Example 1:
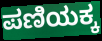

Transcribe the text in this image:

ಪಣಿಯಕ್ಕ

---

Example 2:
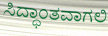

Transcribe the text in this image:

ಸಿದ್ಧಾಂತವಾಗಲಿ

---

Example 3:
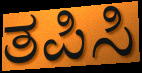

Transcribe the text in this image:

ತಪಿಸಿ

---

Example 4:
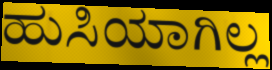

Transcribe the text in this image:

ಹುಸಿಯಾಗಿಲ್ಲ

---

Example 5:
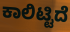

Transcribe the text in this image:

ಕಾಲಿಟ್ಟಿದೆ